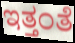
ಇತ್ತಂತೆ